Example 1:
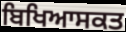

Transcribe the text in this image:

ਬਿਖਿਆਸਕਤ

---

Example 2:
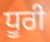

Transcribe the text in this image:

ਧੂਰੀ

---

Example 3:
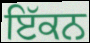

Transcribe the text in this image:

ਇੱਕਨ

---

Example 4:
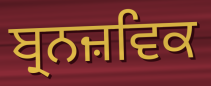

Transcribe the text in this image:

ਬ੍ਰਨਜ਼ਵਿਕ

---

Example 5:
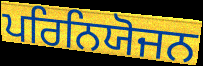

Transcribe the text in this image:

ਪਰਿਨਿਯੋਜਨ